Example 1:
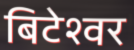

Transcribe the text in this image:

बिटेश्वर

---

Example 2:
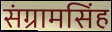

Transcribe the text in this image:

संग्रामसिंह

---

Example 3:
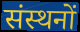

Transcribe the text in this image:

संस्थनों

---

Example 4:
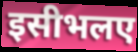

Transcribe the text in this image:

इसीभलए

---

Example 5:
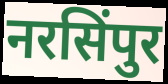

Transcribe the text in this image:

नरसिंपुर